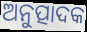
ଅନୁତ୍ପାଦକ